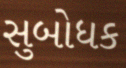
સુબોધક